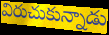
విరుచుకున్నాడు